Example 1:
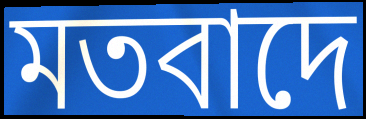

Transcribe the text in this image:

মতবাদে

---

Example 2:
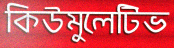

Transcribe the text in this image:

কিউমুলেটিভ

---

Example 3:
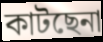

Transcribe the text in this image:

কাটছেনা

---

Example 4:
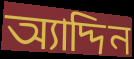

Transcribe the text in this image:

অ্যাদ্দিন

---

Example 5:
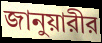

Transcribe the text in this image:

জানুয়ারীর